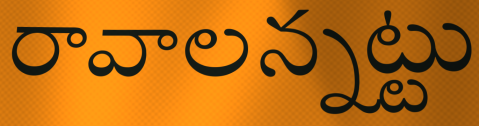
రావాలన్నట్టు